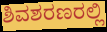
ಶಿವಶರಣರಲ್ಲಿ